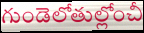
గుండెలోతుల్లోంచీ